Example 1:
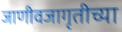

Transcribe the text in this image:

जाणीवजागृतीच्या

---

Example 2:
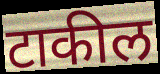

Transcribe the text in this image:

टाकील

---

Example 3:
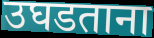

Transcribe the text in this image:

उघडताना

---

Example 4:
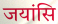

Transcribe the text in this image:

जयांसि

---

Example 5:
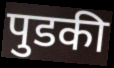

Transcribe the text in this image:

पुडकी